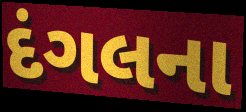
દંગલના